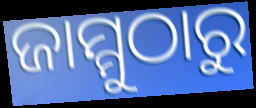
ଜାମ୍ମୁଠାରୁ